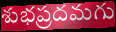
శుభప్రదమగు